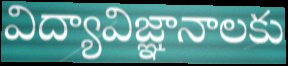
విద్యావిజ్ఞానాలకు